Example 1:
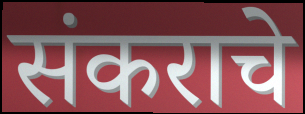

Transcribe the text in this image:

संकराचे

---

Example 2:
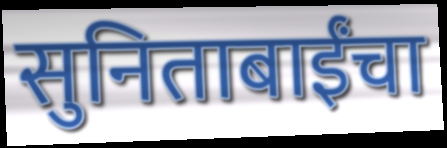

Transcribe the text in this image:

सुनिताबाईंचा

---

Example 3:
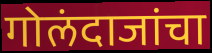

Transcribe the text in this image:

गोलंदाजांचा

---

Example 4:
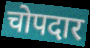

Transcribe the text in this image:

चोपदार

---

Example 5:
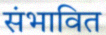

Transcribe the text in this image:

संभावित